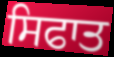
ਸਿਫਾਤ